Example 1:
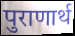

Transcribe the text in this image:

पुराणार्थ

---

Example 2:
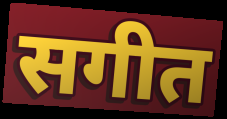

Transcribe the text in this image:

सगीत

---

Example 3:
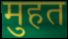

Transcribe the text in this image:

मुहत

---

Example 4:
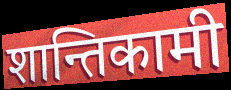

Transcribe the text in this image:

शान्तिकामी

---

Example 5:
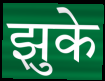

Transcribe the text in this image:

झुके